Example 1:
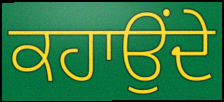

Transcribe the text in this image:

ਕਹਾਉਂਦੇ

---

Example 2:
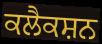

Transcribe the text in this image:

ਕਲੈਕਸ਼ਨ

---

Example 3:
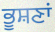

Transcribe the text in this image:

ਭੂਸ਼ਣਾਂ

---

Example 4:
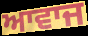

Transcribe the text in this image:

ਆਵਾਜ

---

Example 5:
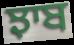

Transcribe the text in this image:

ਝਾਬ